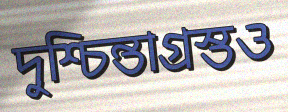
দুশ্চিন্তাগ্রস্তও